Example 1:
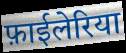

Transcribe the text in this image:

फ़ाईलेरिया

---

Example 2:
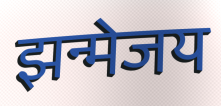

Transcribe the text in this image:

झन्मेजय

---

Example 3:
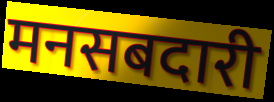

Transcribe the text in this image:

मनसबदारी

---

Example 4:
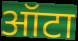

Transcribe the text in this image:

ऑटा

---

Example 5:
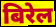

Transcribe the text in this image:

बिरेल